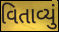
વિતાવ્યું